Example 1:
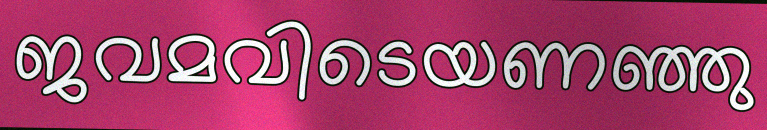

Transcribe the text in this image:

ജവമവിടെയണഞ്ഞു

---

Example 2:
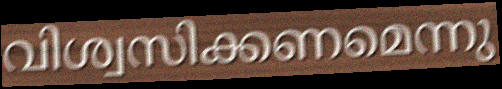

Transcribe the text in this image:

വിശ്വസിക്കണമെന്നു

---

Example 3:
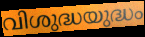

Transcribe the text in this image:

വിശുദ്ധയുദ്ധം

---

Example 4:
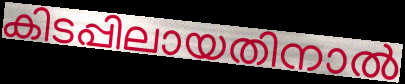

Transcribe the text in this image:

കിടപ്പിലായതിനാൽ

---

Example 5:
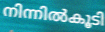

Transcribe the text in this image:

നിന്നിൽകൂടി